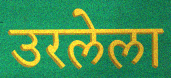
उरलेला